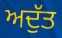
ਅਦੁੱਤ